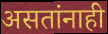
असतांनाही